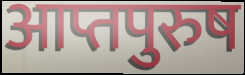
आप्तपुरुष